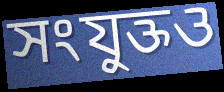
সংযুক্তও